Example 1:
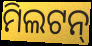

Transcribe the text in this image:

ମିଲଟନ୍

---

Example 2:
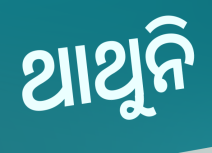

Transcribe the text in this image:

ଥାଥୁନି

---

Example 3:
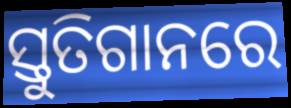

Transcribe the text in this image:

ସ୍ତୁତିଗାନରେ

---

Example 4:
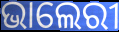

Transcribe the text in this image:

ଭାଲେରୀ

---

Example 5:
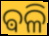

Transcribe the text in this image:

ଵଳି